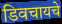
डिवचायचे